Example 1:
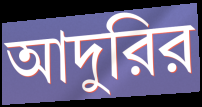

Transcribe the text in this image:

আদুরির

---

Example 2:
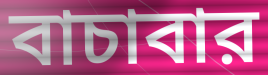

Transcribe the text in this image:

বাচাবার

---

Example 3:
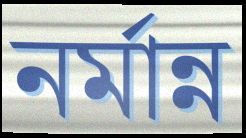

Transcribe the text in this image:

নর্মান্ন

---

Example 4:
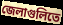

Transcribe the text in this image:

জেলাগুলিতে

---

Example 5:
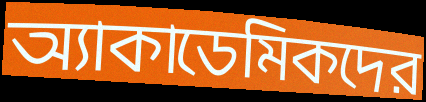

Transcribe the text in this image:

অ্যাকাডেমিকদের